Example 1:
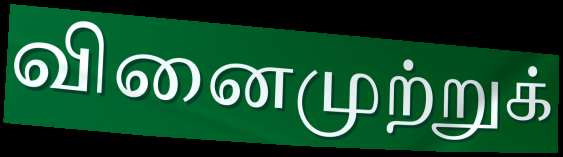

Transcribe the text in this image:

வினைமுற்றுக்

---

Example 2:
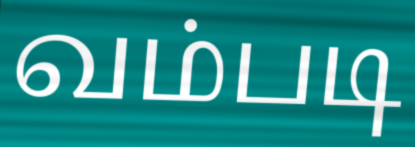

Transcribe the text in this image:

வம்படி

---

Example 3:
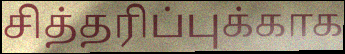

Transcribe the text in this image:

சித்தரிப்புக்காக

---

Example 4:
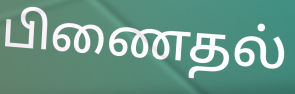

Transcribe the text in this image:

பிணைதல்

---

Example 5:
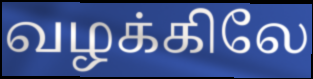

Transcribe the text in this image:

வழக்கிலே